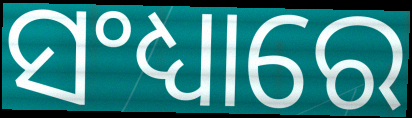
ସଂଧ୍ୟାରେ